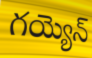
గయ్యెన్